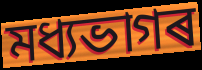
মধ্যভাগৰ